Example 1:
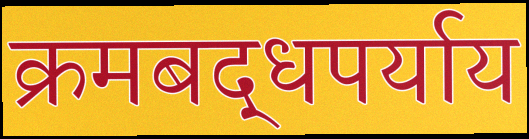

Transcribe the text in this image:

क्रमबद्धपर्याय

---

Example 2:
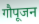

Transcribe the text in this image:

गौपूजन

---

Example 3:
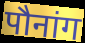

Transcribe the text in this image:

पौनांग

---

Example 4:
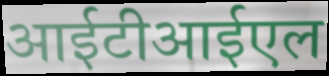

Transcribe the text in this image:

आईटीआईएल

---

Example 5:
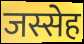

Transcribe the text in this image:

जस्सेह